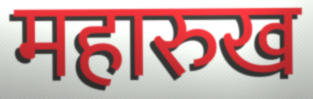
महारुख